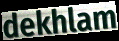
dekhlam